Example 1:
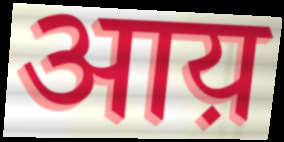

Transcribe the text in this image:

आय़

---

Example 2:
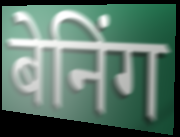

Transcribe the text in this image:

बेनिंग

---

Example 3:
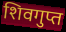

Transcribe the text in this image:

शिवगुप्त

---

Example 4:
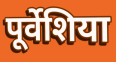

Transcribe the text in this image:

पूर्वेशिया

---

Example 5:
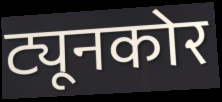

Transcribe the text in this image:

ट्यूनकोर